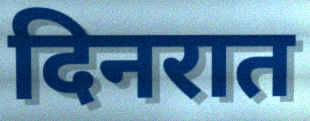
दिनरात